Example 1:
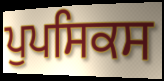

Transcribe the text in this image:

ਪੁਪਸਿਕਸ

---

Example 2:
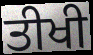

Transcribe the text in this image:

ਤੀਖੀ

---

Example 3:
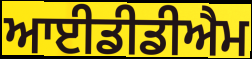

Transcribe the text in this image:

ਆਈਡੀਡੀਐਮ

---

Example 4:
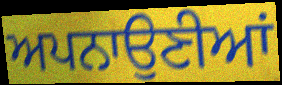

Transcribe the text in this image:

ਅਪਨਾਉਣੀਆਂ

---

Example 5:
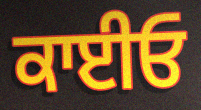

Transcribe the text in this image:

ਕਾਈਓ